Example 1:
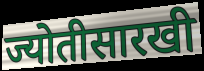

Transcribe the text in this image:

ज्योतीसारखी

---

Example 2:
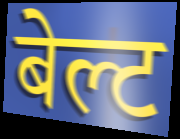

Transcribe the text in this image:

बेल्ट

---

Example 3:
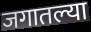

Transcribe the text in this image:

जगातल्या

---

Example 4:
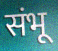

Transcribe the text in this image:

संभू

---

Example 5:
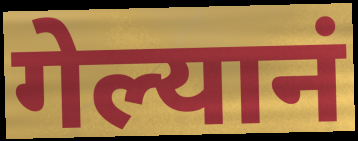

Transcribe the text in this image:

गेल्यानं